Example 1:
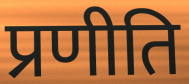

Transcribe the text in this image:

प्रणीति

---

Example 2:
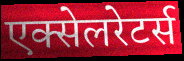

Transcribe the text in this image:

एक्सेलरेटर्स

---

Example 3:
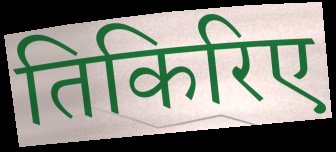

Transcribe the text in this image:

तिकिरिए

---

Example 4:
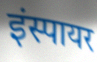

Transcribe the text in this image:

इंस्पायर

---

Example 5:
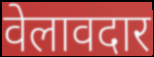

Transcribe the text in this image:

वेलावदार